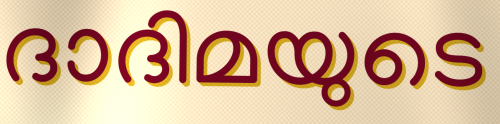
ദാദിമയുടെ